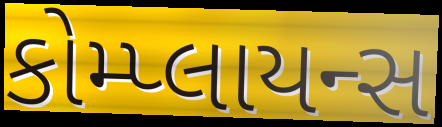
કોમ્પ્લાયન્સ